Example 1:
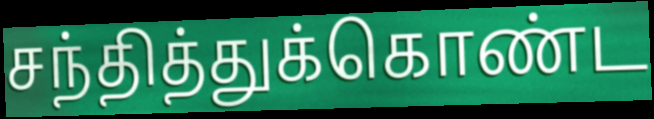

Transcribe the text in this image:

சந்தித்துக்கொண்ட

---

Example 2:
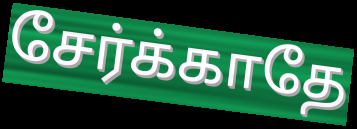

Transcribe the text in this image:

சேர்க்காதே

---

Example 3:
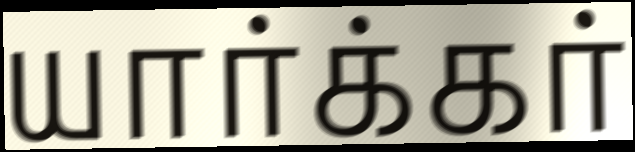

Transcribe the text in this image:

யார்க்கர்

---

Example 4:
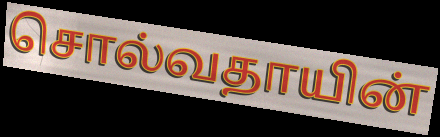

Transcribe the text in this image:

சொல்வதாயின்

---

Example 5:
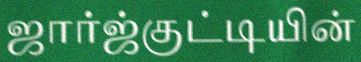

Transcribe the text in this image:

ஜார்ஜ்குட்டியின்